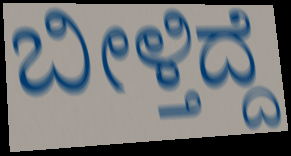
ಬೀಳ್ತಿದ್ದೆ